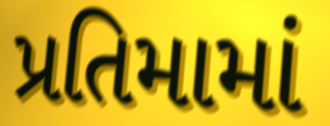
પ્રતિમામાં